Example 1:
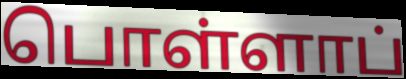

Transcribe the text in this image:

பொள்ளாப்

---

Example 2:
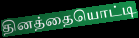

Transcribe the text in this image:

தினத்தையொட்டி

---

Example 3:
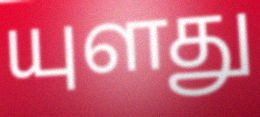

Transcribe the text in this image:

யுளது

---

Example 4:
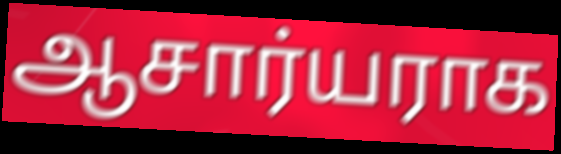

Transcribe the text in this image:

ஆசார்யராக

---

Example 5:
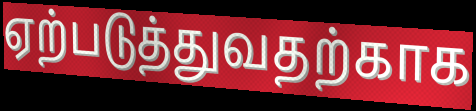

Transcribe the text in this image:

ஏற்படுத்துவதற்காக